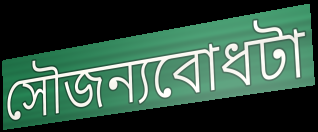
সৌজন্যবোধটা